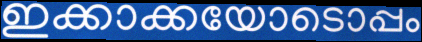
ഇക്കാക്കയോടൊപ്പം